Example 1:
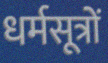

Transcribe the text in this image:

धर्मसूत्रों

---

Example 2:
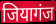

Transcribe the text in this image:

जियागंज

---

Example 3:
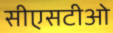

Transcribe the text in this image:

सीएसटीओ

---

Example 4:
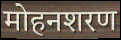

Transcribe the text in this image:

मोहनशरण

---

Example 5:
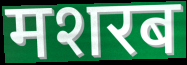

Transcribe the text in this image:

मशरब